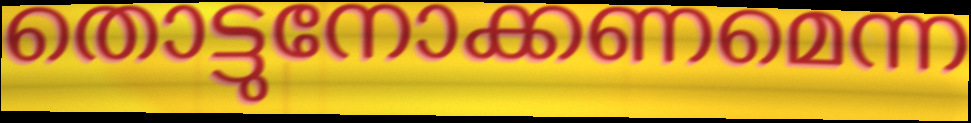
തൊട്ടുനോക്കണമെന്ന